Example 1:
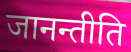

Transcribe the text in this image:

जानन्तीति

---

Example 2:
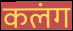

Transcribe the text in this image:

कलंग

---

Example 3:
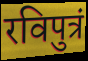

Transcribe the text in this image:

रविपुत्रं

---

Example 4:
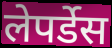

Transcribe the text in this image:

लेपर्डेस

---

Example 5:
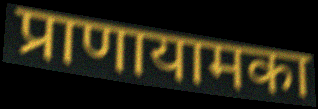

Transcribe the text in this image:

प्राणायामका